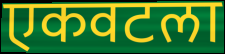
एकवटला